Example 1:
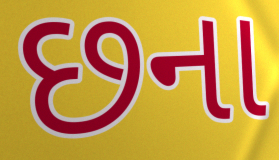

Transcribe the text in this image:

છના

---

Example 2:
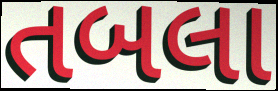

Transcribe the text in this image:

તબલા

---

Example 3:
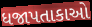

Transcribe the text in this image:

ધજાપતાકાઓ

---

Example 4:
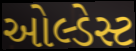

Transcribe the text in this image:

ઓલ્ડેસ્ટ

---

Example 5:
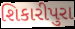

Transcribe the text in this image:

શિકારીપુરા